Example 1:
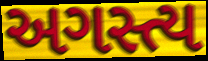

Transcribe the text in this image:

અગસ્ત્ય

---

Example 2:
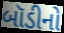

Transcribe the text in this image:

બૉડીનો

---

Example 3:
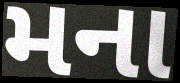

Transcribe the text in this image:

મના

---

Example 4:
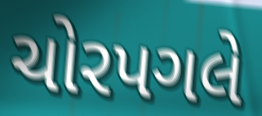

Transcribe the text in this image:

ચોરપગલે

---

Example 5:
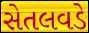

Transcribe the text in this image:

સેતલવડે